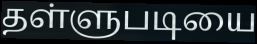
தள்ளுபடியை